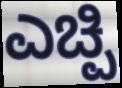
ಎಚ್ಪಿ